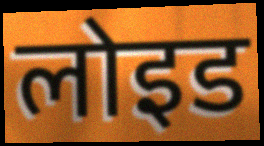
लोइड